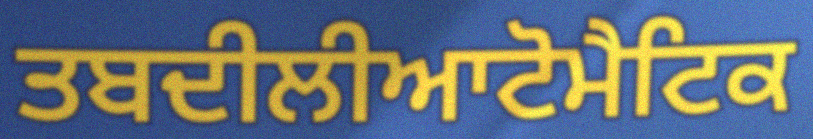
ਤਬਦੀਲੀਆਟੋਮੈਟਿਕ